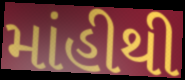
માંહીથી